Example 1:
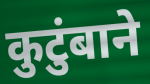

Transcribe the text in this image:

कुटुंबाने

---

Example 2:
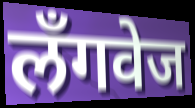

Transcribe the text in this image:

लॅंगवेज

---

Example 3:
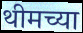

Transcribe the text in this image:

थीमच्या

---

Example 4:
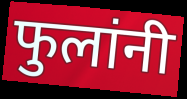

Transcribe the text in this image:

फुलांनी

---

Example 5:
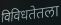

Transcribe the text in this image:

विविधतेतला